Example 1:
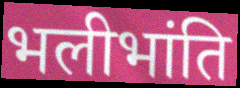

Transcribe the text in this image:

भलीभांति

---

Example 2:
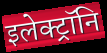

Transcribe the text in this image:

इलेक्ट्रॉनि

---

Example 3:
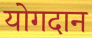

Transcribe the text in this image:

योगदान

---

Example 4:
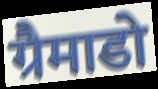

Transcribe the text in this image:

ग्रैमाडो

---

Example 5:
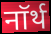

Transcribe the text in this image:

नॉर्थ